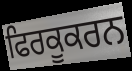
ਫਿਰਕੂਕਰਨ